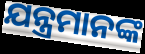
ଯନ୍ତ୍ରମାନଙ୍କ